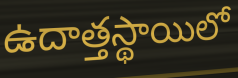
ఉదాత్తస్థాయిలో